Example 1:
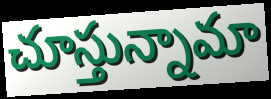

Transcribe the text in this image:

చూస్తున్నామా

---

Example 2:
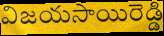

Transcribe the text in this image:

విజయసాయిరెడ్డి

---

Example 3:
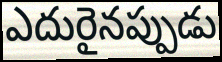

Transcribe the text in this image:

ఎదురైనప్పుడు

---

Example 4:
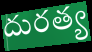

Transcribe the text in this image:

దురత్య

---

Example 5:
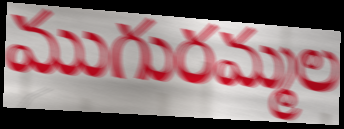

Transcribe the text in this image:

ముగురమ్మల